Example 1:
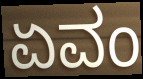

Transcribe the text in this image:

ಏವಂ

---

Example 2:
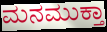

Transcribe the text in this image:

ಮನಮುಕ್ತಾ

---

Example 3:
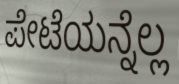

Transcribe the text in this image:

ಪೇಟೆಯನ್ನೆಲ್ಲ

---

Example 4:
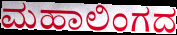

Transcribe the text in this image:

ಮಹಾಲಿಂಗದ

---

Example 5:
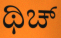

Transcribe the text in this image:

ಥಿಚ್